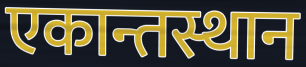
एकान्तस्थान